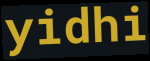
yidhi